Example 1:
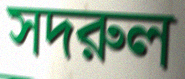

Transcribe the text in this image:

সদরুল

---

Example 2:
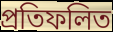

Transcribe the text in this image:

প্রতিফলিত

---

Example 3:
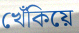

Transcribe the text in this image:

খেঁকিয়ে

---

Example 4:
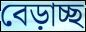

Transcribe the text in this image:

বেড়াচ্ছ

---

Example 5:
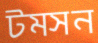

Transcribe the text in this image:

টমসন